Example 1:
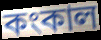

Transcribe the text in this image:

কংকাল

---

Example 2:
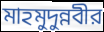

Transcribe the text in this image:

মাহমুদুন্নবীর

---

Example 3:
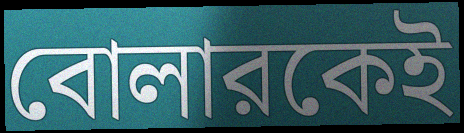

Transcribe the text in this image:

বোলারকেই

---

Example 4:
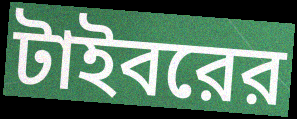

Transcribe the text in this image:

টাইবরের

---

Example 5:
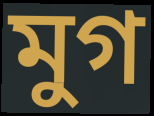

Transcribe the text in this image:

মুগ